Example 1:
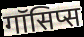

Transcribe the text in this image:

गॉसिप्स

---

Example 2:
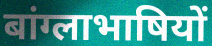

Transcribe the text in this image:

बांग्लाभाषियों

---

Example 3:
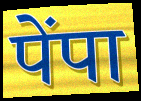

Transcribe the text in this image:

पेंपा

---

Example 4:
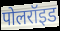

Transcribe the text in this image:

पोलरॉइड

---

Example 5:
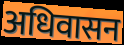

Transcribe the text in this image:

अधिवासन